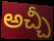
అచ్చీ